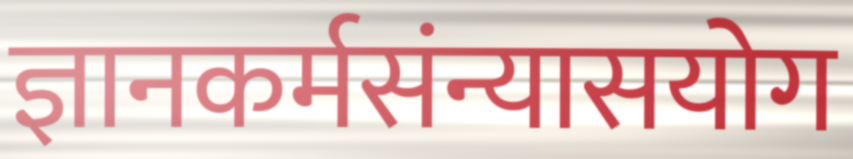
ज्ञानकर्मसंन्यासयोग